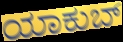
ಯಾಕುಬ್